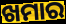
ଖମାର